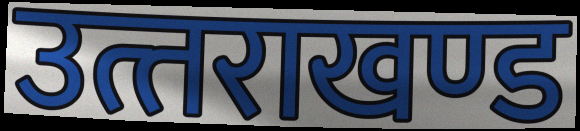
उत्‍तराखण्‍ड